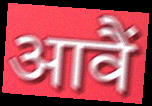
आवैं